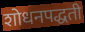
शोधनपद्धती